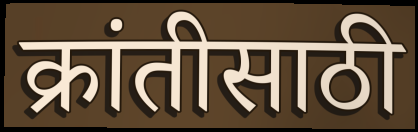
क्रांतीसाठी